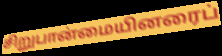
சிறுபான்மையினரைப்